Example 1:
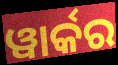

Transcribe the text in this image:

ୱାର୍କର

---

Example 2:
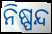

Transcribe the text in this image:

ନିଷ୍ପନ୍ଦ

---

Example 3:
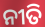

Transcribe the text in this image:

ନୀତି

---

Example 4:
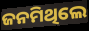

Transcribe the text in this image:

ଜନମିଥିଲେ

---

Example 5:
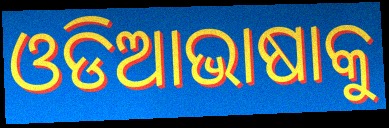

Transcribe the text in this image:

ଓଡିଆଭାଷାକୁ